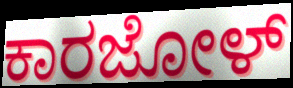
ಕಾರಜೋಳ್